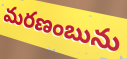
మరణంబును